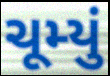
ચૂમ્યું